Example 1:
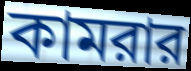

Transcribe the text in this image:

কামরার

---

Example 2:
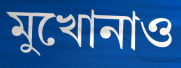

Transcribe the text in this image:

মুখোনাও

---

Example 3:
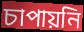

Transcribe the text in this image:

চাপায়নি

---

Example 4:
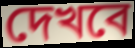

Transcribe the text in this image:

দেখবে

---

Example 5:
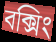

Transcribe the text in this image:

বক্সিং